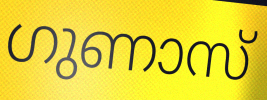
ഗുണാസ്